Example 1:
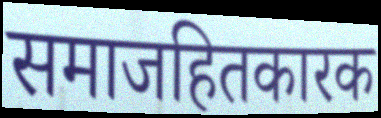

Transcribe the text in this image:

समाजहितकारक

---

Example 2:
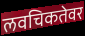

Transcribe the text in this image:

लवचिकतेवर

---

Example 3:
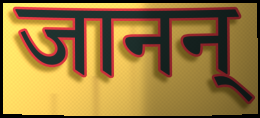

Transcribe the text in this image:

जानन्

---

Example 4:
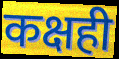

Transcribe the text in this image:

कक्षही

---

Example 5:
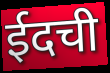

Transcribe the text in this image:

ईदची